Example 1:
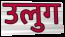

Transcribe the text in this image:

उलुग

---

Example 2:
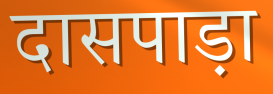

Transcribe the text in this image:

दासपाड़ा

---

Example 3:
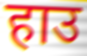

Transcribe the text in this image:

हाउ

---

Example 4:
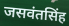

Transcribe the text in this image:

जसवंतसिंह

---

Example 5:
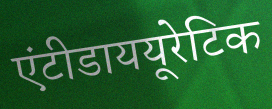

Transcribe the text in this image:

एंटीडाययूरेटिक